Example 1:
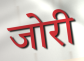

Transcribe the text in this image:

जोरी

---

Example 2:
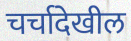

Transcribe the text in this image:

चर्चादेखील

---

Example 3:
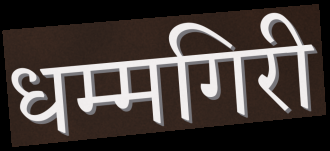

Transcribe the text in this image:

धम्मगिरी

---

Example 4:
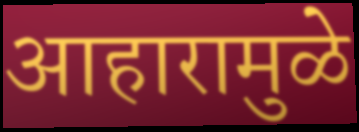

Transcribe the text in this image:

आहारामुळे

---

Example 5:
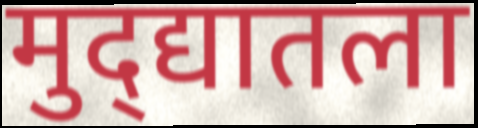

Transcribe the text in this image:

मुद्द्यातला